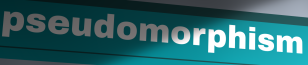
pseudomorphism